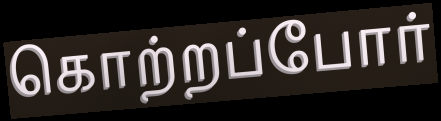
கொற்றப்போர்